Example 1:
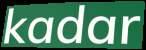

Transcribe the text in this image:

kadar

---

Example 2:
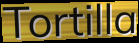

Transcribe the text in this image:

Tortilla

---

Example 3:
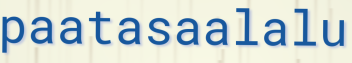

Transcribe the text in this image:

paatasaalalu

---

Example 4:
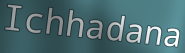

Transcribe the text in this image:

Ichhadana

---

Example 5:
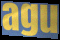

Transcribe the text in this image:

agu